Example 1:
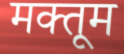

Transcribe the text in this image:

मक्तूम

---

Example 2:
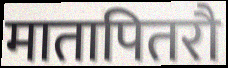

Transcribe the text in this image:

मातापितरौ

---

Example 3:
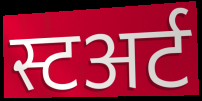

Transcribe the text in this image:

स्टअर्ट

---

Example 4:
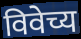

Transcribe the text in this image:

विवेच्य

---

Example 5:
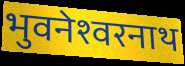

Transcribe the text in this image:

भुवनेश्वरनाथ